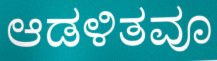
ಆಡಳಿತವೂ